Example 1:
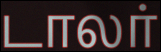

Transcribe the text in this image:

டாலர்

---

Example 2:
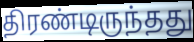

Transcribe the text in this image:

திரண்டிருந்தது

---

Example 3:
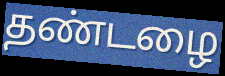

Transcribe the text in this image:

தண்டழை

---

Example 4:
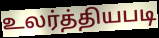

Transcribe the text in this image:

உலர்த்தியபடி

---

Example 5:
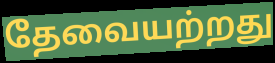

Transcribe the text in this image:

தேவையற்றது